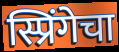
स्प्रिंगेचा